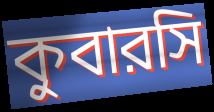
কুবারসি